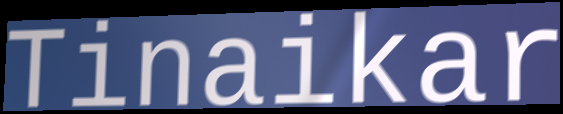
Tinaikar